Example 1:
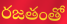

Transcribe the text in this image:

రజతంతో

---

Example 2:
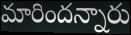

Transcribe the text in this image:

మారిందన్నారు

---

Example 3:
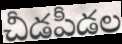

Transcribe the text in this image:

చీడపీడల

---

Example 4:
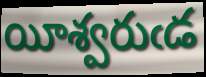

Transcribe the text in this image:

యీశ్వరుఁడ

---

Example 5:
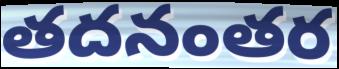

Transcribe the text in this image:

తదనంతర